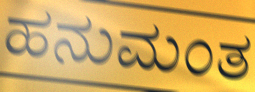
ಹನುಮಂತ